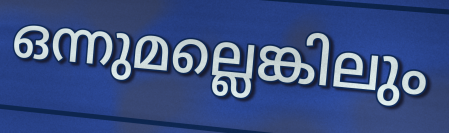
ഒന്നുമല്ലെങ്കിലും